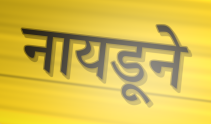
नायडूने